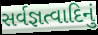
સર્વજ્ઞત્વાદિનું